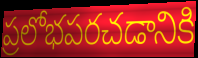
ప్రలోభపరచడానికి